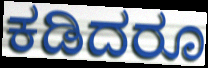
ಕಡಿದರೂ